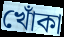
খোঁকা